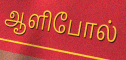
ஆளிபோல்